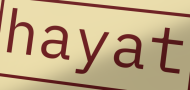
hayat